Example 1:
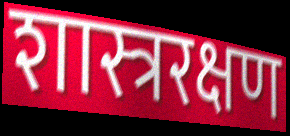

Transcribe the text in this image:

शास्त्ररक्षण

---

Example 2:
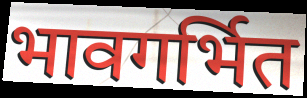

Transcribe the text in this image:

भावगर्भित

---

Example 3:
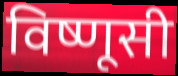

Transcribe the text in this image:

विष्णूसी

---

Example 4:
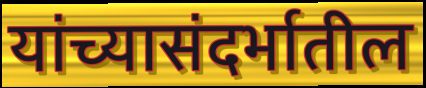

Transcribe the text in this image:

यांच्यासंदर्भातील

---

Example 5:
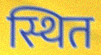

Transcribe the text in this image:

स्थित